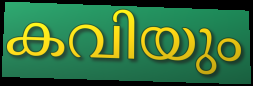
കവിയും